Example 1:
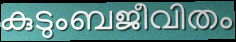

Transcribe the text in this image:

കുടുംബജീവിതം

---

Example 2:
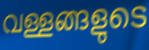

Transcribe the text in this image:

വള്ളങ്ങളുടെ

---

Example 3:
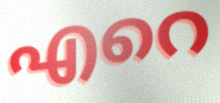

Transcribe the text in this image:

എറെ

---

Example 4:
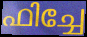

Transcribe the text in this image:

ഫിച്ചേ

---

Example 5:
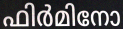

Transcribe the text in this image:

ഫിർമിനോ